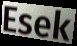
Esek